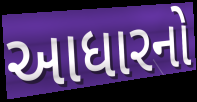
આધારનો